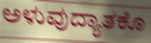
ಅಳುವುದ್ಯಾತಕೊ